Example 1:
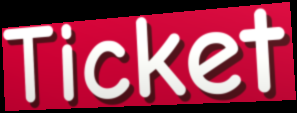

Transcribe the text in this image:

Ticket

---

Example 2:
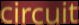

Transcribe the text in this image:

circuit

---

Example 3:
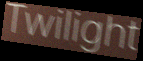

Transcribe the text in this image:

Twilight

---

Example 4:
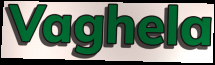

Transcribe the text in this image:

Vaghela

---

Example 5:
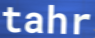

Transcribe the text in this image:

tahr